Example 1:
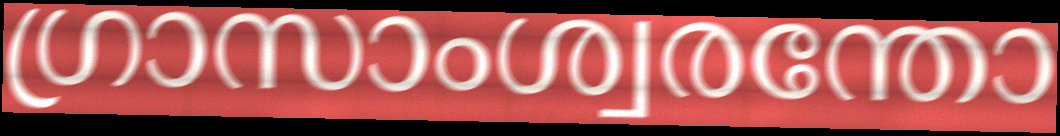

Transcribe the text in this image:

ഗ്രാസാംശ്വരന്തോ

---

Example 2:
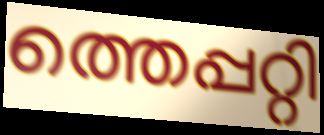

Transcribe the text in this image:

ത്തെപ്പറ്റി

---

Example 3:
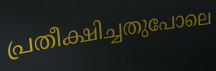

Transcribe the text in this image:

പ്രതീക്ഷിച്ചതുപോലെ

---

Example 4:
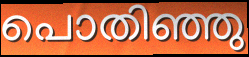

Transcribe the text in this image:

പൊതിഞ്ഞു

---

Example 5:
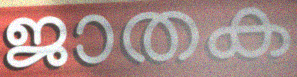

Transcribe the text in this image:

ജാതക